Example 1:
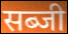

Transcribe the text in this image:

सब्जी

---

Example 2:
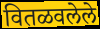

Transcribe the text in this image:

वितळवलेले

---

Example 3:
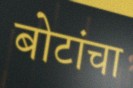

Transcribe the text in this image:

बोटांचा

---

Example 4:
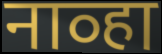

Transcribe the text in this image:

नाव्हा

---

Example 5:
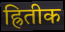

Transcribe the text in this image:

ह्रितीक